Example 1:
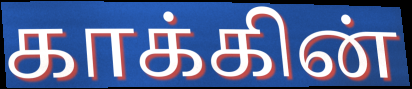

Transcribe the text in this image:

காக்கின்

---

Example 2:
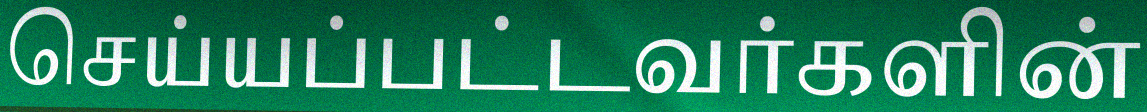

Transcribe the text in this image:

செய்யப்பட்டவர்களின்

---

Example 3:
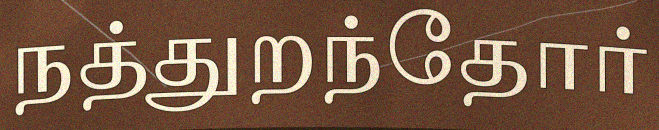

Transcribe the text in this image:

நத்துறந்தோர்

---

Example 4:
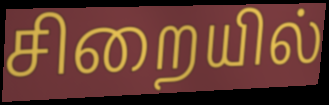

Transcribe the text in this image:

சிறையில்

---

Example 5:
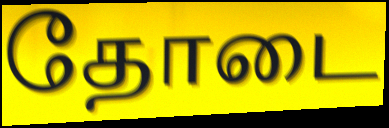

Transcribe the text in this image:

தோடை